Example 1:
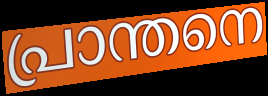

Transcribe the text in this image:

പ്രാന്തനെ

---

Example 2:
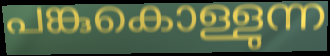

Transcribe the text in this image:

പങ്കുകൊള്ളുന്ന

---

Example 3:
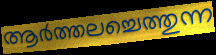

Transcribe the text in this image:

ആർത്തലച്ചെത്തുന്ന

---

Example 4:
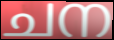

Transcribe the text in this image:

ചന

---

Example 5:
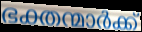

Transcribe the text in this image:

ഭക്തന്മാർക്ക്